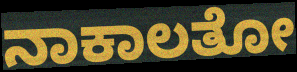
ನಾಕಾಲತೋ